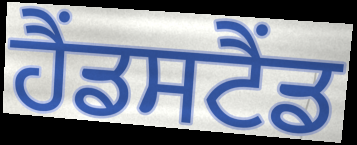
ਹੈਂਡਸਟੈਂਡ